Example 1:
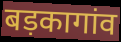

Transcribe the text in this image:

बड़कागांव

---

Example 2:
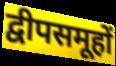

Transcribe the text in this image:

द्वीपसमूहों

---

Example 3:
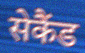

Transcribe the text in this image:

सेकैंड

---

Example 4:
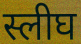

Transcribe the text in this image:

स्लीघ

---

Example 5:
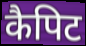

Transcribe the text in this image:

कैपिट